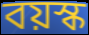
বয়স্ক